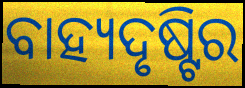
ବାହ୍ୟଦୃଷ୍ଟିର